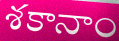
శకానాం